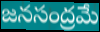
జనసంద్రమే